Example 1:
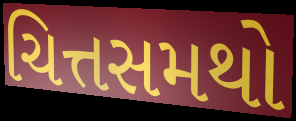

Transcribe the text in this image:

ચિત્તસમથો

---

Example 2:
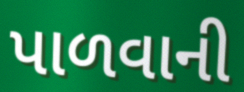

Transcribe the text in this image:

પાળવાની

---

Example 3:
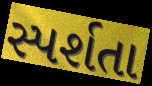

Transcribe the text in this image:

સ્પર્શતા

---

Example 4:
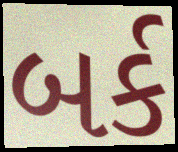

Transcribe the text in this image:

બર્ક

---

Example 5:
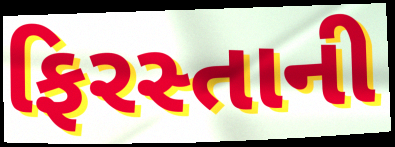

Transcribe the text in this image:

ફિરસ્તાની